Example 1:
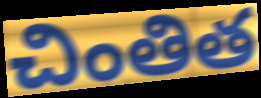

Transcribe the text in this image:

చింతిత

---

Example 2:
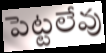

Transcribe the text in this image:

పెట్టలేవు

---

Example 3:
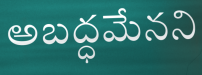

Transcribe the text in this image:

అబద్ధమేనని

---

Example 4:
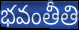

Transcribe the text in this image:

భవంతీతి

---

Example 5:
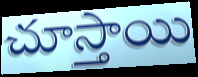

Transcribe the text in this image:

చూస్తాయి